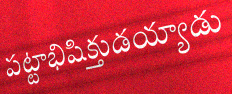
పట్టాభిషిక్తుడయ్యాడు